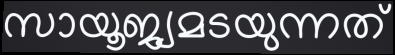
സായൂജ്യമടയുന്നത്